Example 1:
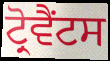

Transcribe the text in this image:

ਟ੍ਰੋਵੈਂਟਸ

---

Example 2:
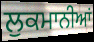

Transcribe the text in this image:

ਲੁਕਮਾਨੀਆਂ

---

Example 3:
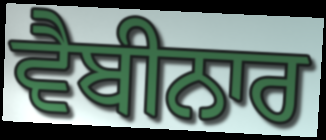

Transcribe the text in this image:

ਵੈਬੀਨਾਰ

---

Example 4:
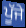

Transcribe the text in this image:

ਪੂੱਜੇ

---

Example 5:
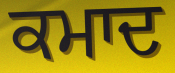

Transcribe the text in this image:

ਕਮਾਦ